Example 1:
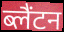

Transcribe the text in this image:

ब्लैंटन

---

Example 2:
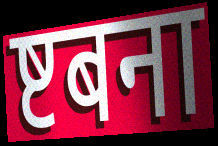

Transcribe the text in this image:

ष्टबना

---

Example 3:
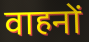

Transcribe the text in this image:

वाहनों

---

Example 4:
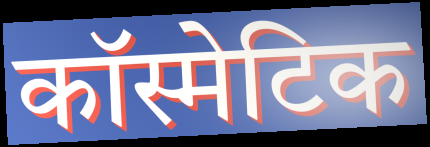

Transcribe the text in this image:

कॉस्मेटिक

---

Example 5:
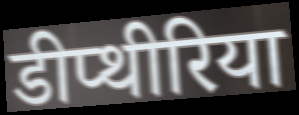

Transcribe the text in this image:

डीप्थीरिया